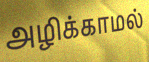
அழிக்காமல்